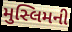
મુસ્લિમની